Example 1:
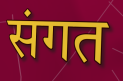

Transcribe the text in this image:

संगत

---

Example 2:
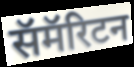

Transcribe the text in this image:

सॅमॅरिटन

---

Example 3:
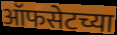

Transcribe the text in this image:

ऑफसेटच्या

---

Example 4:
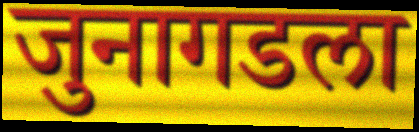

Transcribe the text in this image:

जुनागडला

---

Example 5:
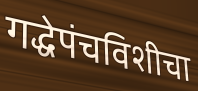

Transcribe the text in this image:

गद्धेपंचविशीचा